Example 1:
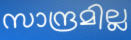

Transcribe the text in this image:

സാന്ദ്രമില്ല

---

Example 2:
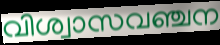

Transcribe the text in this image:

വിശ്വാസവഞ്ചന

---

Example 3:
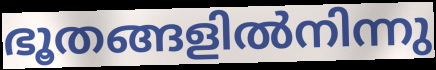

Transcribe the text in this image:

ഭൂതങ്ങളിൽനിന്നു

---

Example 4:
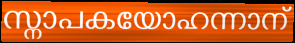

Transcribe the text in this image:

സ്നാപകയോഹന്നാന്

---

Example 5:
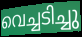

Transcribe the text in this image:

വെച്ചടിച്ചു